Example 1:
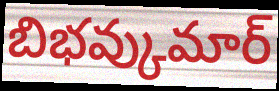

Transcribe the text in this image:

బిభవ్కుమార్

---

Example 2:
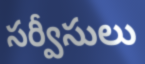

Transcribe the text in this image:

సర్వీసులు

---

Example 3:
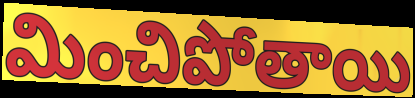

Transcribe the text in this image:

మించిపోతాయి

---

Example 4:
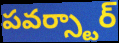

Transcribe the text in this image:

పవర్స్టార్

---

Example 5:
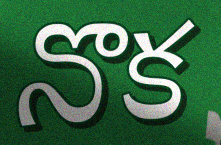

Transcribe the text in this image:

నొక